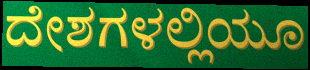
ದೇಶಗಳಲ್ಲಿಯೂ